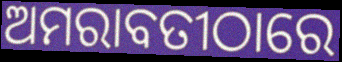
ଅମରାବତୀଠାରେ